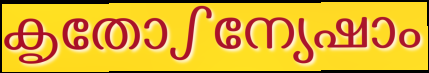
കൃതോഽന്യേഷാം